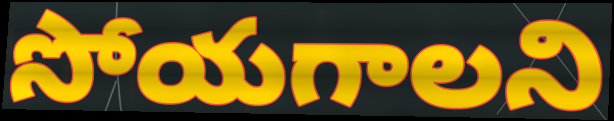
సోయగాలని